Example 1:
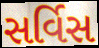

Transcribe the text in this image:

સર્વિસ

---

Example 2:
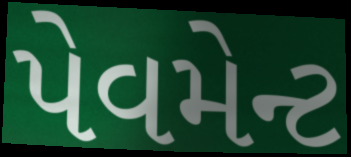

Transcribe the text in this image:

પેવમેન્ટ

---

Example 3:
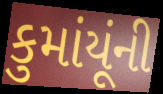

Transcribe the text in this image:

કુમાંયૂંની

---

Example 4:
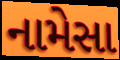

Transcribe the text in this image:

નામેસા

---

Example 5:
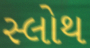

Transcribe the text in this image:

સ્લોથ